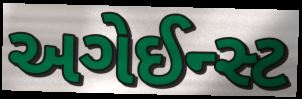
અગેઈન્સ્ટ